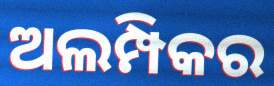
ଅଲମ୍ପିକର